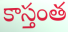
కాస్తంత